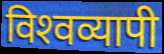
विश्‍वव्यापी